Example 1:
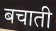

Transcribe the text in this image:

बचाती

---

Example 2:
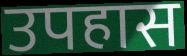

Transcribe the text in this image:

उपहास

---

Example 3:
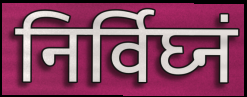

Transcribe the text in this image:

निर्विघ्नं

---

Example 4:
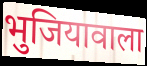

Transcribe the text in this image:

भुजियावाला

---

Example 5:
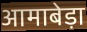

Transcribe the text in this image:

आमाबेड़ा